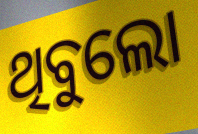
ଥିବୁଲୋ